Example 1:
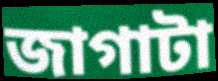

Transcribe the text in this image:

জাগাটা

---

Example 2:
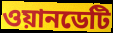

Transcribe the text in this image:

ওয়ানডেটি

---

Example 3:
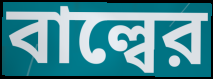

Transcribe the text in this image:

বাল্বের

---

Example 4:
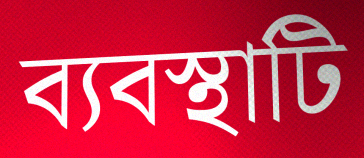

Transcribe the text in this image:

ব্যবস্থাটি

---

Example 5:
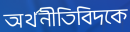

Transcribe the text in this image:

অর্থনীতিবিদকে